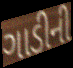
ગાડીની